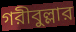
গরীবুল্লার